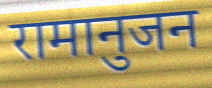
रामानुजन